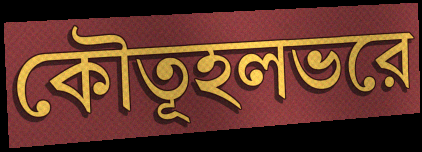
কৌতূহলভরে